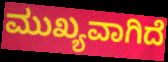
ಮುಖ್ಯವಾಗಿದೆ